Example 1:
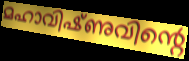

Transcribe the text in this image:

മഹാവിഷ്‌ണുവിന്റെ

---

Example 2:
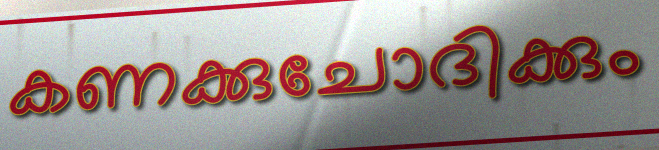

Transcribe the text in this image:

കണക്കുചോദിക്കും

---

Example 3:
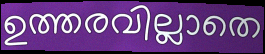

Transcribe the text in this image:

ഉത്തരവില്ലാതെ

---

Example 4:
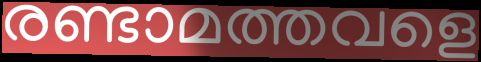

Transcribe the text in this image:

രണ്ടാമത്തവളെ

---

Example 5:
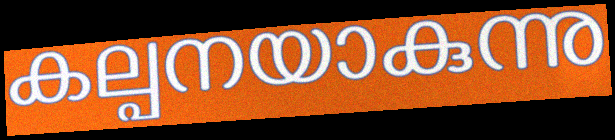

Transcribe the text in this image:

കല്പനയാകുന്നു